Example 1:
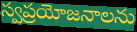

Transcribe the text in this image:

స్వప్రయోజనాలను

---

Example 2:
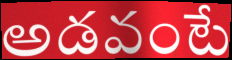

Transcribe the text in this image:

అడవంటే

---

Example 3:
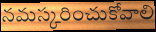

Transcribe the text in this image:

నమస్కరించుకోవాలి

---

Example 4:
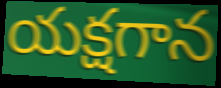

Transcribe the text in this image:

యక్షగాన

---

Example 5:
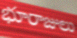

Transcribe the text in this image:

భూరాజులు